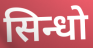
सिन्धो